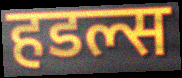
हडल्स